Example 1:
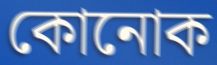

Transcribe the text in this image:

কোনোক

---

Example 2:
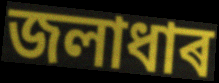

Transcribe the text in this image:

জলাধাৰ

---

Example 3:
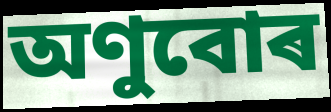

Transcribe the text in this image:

অণুবোৰ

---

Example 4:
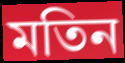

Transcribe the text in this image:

মতিন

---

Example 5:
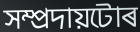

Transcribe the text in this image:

সম্প্ৰদায়টোৰ